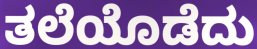
ತಲೆಯೊಡೆದು